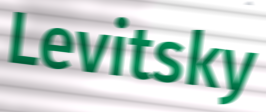
Levitsky